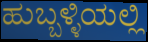
ಹುಬ್ಬಳ್ಳಿಯಲ್ಲಿ